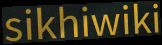
sikhiwiki